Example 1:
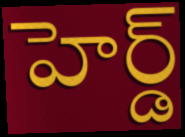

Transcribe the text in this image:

హెర్డ్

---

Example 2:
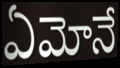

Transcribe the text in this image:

ఏమోనే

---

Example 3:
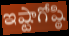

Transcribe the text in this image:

ఇష్టాగోష్ఠి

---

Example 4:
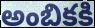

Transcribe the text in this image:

అంబికకి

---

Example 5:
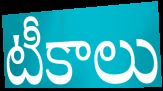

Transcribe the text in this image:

టీకాలు